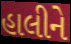
હાલીને